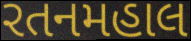
રતનમહાલ